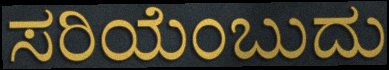
ಸರಿಯೆಂಬುದು